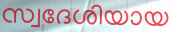
സ്വദേശിയായ